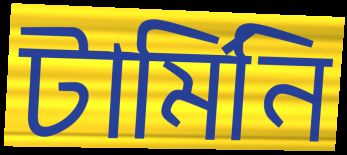
টার্মিনি